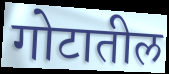
गोटातील